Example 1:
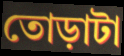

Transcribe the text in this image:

তোড়াটা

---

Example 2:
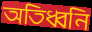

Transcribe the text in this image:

অতিধ্বনি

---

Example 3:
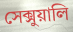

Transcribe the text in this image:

সেক্সুয়ালি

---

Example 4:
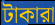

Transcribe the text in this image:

টাকারা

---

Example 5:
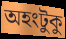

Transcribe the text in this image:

অহংটুকু